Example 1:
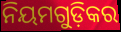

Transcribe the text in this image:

ନିୟମଗୁଡ଼ିକର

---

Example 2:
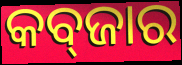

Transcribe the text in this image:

କବ୍‌ଜାର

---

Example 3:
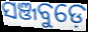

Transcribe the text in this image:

ସଞ୍ଜବୁଡ଼େ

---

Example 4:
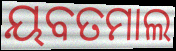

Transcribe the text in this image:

ୟବତମାଲ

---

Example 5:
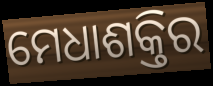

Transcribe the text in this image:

ମେଧାଶକ୍ତିର